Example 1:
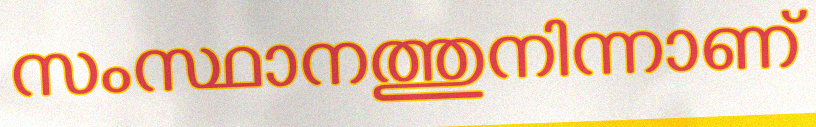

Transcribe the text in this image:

സംസ്ഥാനത്തുനിന്നാണ്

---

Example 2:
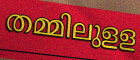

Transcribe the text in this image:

തമ്മിലുളള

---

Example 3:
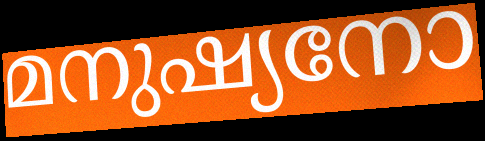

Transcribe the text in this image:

മനുഷ്യനോ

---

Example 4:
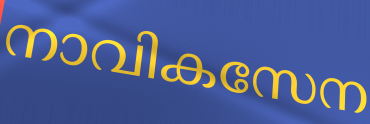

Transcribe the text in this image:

നാവികസേന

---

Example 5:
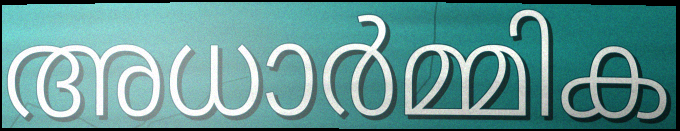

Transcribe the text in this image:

അധാർമ്മിക